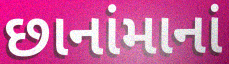
છાનાંમાનાં